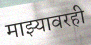
माझ्यावरही